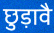
छुड़ावै